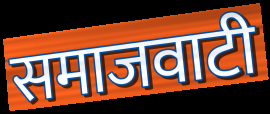
समाजवाटी